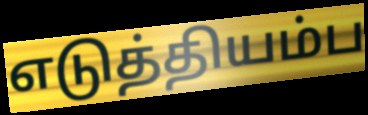
எடுத்தியம்ப